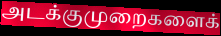
அடக்குமுறைகளைக்